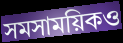
সমসাময়িকও